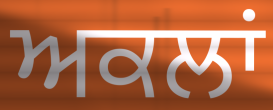
ਅਕਲਾਂ